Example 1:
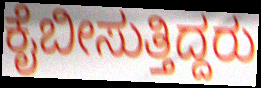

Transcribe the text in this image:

ಕೈಬೀಸುತ್ತಿದ್ದರು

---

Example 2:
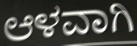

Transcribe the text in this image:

ಆಳವಾಗಿ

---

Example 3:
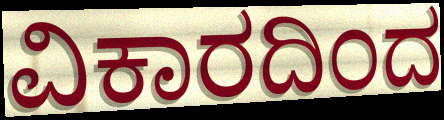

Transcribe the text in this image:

ವಿಕಾರದಿಂದ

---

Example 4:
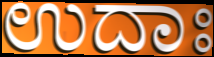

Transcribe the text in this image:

ಉದಾಃ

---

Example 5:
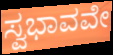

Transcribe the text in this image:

ಸ್ವಭಾವವೇ